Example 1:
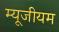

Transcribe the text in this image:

म्यूजीयम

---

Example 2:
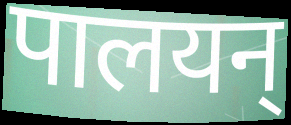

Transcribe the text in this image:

पालयन्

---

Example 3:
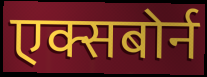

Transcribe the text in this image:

एक्सबोर्न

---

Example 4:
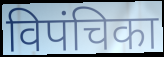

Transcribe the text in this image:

विपंचिका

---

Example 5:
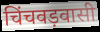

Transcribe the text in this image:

चिंचवड़वासी